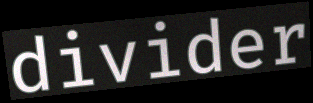
divider